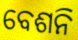
ବେଶନି